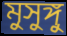
মুসুঙ্গু